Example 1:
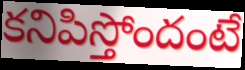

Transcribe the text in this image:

కనిపిస్తోందంటే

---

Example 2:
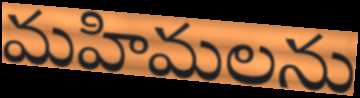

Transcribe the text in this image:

మహిమలను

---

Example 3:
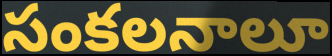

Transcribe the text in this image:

సంకలనాలూ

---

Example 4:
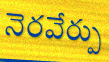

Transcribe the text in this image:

నెరవేర్పు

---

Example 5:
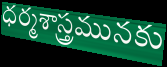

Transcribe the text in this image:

ధర్మశాస్త్రమునకు